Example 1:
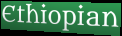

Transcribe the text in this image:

Ethiopian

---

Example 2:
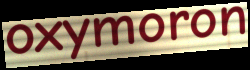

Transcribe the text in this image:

oxymoron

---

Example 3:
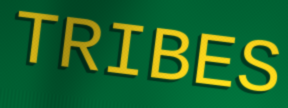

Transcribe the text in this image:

TRIBES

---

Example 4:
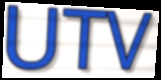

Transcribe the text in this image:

UTV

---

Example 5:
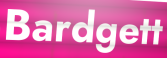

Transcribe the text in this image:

Bardgett